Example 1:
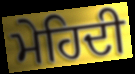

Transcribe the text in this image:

ਮੇਹਿਦੀ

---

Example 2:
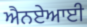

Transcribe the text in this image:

ਐਨਏਆਈ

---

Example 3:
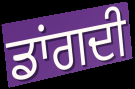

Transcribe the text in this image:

ਡਾਂਗਦੀ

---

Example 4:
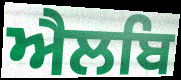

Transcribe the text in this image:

ਐਲਬਿ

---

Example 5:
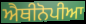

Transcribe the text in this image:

ਐਥੀਨੋਪੀਆ